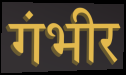
गंभीर